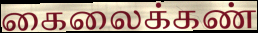
கைலைக்கண்